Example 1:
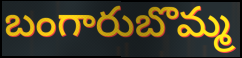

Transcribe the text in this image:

బంగారుబొమ్మ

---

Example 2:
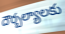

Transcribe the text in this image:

దౌర్బల్యాలకు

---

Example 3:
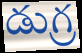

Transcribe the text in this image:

డుగ్ర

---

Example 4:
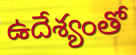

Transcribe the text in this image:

ఉదేశ్యంతో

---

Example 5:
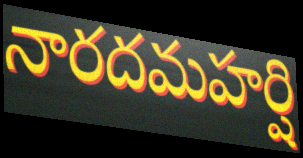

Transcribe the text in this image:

నారదమహర్షి